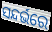
ସନ୍ଦର୍ଭରେ